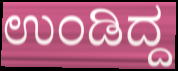
ಉಂಡಿದ್ದ